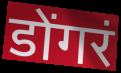
डोंगरं